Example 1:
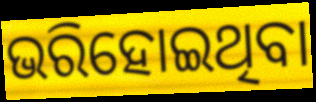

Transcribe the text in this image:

ଭରିହୋଇଥିବା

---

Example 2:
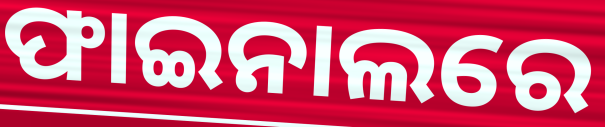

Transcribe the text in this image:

ଫାଇନାଲରେ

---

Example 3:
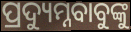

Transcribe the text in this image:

ପ୍ରଦ୍ୟୁମ୍ନବାବୁଙ୍କୁ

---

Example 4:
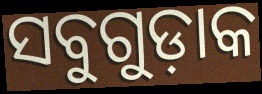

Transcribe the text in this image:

ସବୁଗୁଡ଼ାକ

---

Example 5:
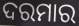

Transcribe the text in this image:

ଦରମାର